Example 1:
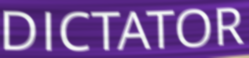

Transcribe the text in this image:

DICTATOR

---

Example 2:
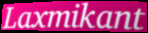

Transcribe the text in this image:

Laxmikant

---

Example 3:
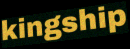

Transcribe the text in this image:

kingship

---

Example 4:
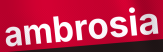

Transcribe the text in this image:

ambrosia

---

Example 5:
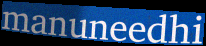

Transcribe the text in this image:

manuneedhi